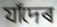
যাঁদেৰ